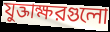
যুক্তাক্ষরগুলো